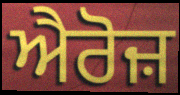
ਐਰੋਜ਼